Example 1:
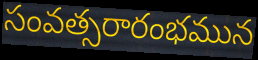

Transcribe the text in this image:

సంవత్సరారంభమున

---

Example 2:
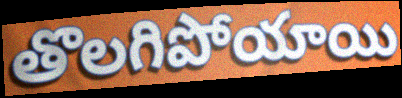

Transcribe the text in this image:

తొలగిపోయాయి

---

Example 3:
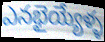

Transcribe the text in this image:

ఎనభైయ్యేళ్ళ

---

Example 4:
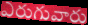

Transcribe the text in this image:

ఎరుగువారు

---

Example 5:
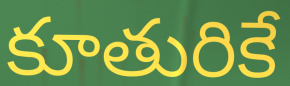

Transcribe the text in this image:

కూతురికే